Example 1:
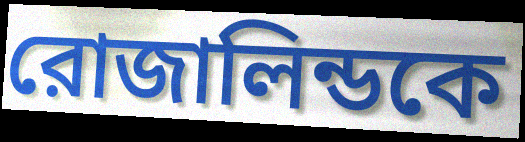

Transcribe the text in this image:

রোজালিন্ডকে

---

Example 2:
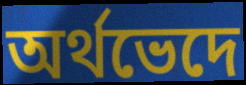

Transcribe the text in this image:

অর্থভেদে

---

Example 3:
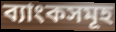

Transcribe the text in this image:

ব্যাংকসমূহ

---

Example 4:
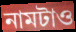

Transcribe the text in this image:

নামটাও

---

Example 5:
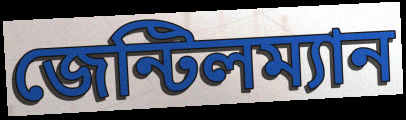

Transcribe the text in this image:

জেন্টিলম্যান